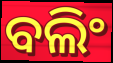
ବଲିଂ